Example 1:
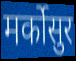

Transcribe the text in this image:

मर्कोसुर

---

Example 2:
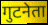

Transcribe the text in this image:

गुटनेता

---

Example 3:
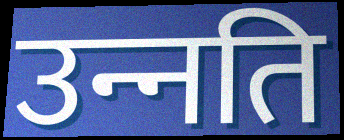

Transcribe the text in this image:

उन्‍नति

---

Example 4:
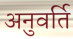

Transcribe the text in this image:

अनुवर्ति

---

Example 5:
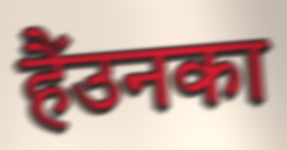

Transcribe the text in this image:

हैंउनका